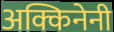
अक्किनेनी